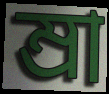
ম্রা